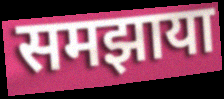
समझाया